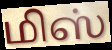
மிஸ்